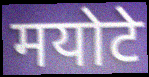
मयोटे